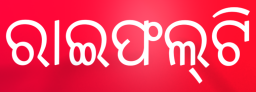
ରାଇଫଲ୍‍ଟି